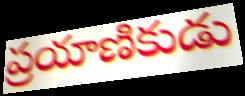
ప్రయాణికుడు